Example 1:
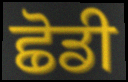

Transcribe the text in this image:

ਛੋਡੀ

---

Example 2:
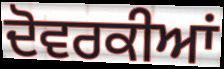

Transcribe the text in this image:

ਦੋਵਰਕੀਆਂ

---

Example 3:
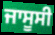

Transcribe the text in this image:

ਜਾਸੂਸੀ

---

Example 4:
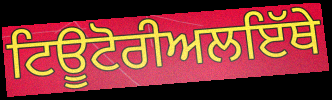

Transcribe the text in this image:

ਟਿਊਟੋਰੀਅਲਇੱਥੇ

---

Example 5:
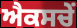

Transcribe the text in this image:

ਐਕਸਚੇਂ